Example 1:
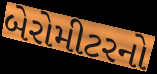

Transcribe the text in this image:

બેરોમીટરનો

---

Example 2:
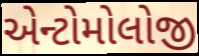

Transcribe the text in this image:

એન્ટોમોલોજી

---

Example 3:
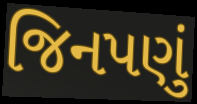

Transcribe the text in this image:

જિનપણું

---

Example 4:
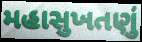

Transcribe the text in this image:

મહાસુખતણું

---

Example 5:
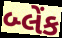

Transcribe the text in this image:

બ્લેંક